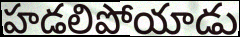
హడలిపోయాడు